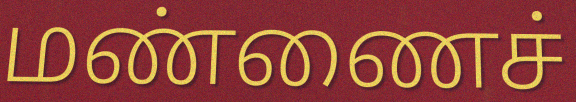
மண்ணைச்